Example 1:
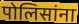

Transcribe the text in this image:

पोलिसांना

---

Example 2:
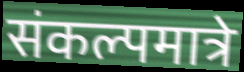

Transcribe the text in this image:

संकल्पमात्रे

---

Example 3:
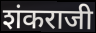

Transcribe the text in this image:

शंकराजी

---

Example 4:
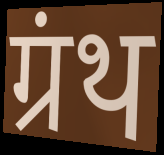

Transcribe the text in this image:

ग्रंथ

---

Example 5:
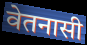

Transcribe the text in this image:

वेतनासी